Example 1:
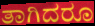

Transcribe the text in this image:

ತಾಗಿದರೂ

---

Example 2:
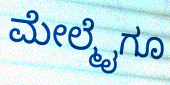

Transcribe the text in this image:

ಮೇಲ್ಮೈಗೂ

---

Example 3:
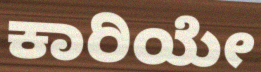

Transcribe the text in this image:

ಕಾರಿಯೇ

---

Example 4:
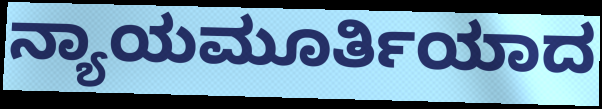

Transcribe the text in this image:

ನ್ಯಾಯಮೂರ್ತಿಯಾದ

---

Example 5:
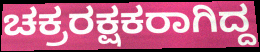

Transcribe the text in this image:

ಚಕ್ರರಕ್ಷಕರಾಗಿದ್ದ